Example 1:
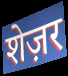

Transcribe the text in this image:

शेज़र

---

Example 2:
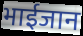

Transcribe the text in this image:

भाईजान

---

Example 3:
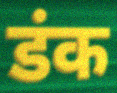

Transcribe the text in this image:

डंक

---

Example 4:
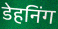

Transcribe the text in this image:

डेहनिंग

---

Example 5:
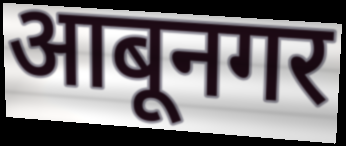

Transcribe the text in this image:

आबूनगर